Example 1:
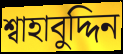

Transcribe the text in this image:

শ্বাহাবুদ্দিন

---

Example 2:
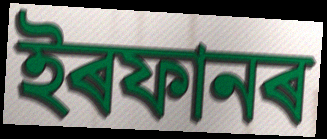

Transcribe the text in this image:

ইৰফানৰ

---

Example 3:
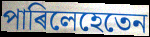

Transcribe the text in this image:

পাৰিলেহেতেন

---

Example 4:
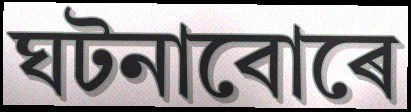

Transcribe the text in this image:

ঘটনাবোৰে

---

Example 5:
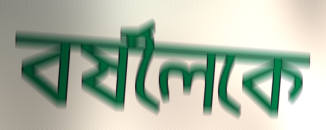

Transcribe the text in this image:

বৰ্ষলৈকে